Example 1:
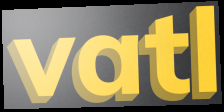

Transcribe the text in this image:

vatl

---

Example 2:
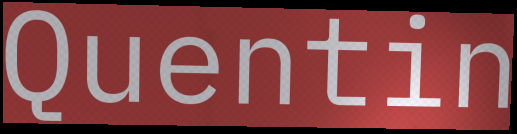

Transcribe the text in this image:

Quentin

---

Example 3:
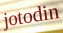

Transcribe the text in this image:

jotodin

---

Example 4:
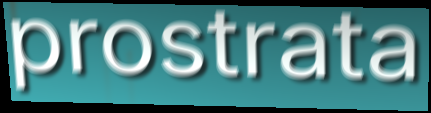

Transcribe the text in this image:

prostrata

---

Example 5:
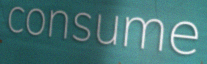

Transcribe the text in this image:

consume